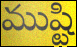
ముష్టి